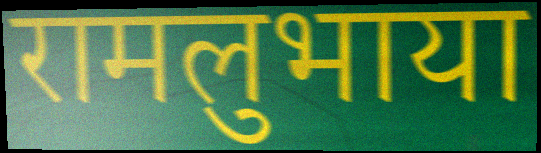
रामलुभाया